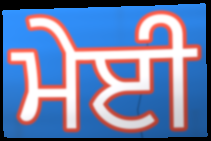
ਮੇਈ